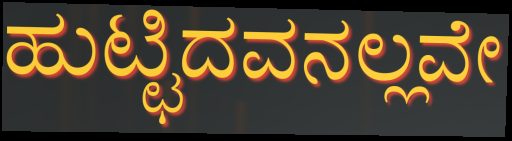
ಹುಟ್ಟಿದವನಲ್ಲವೇ